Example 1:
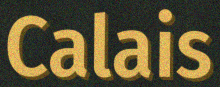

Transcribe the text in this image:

Calais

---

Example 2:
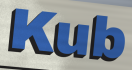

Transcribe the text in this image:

Kub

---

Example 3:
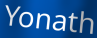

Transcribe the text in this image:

Yonath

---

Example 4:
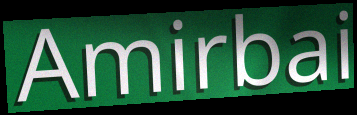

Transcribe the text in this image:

Amirbai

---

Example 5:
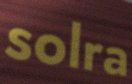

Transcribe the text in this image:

solra